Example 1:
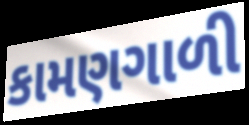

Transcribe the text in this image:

કામણગાળી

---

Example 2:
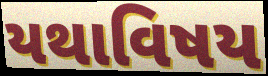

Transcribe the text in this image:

યથાવિષય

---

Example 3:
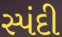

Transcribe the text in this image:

સ્પંદી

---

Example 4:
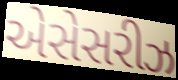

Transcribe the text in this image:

એસેસરીઝ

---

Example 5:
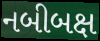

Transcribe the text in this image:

નબીબક્ષ